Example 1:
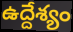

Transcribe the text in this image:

ఉద్దేశ్యం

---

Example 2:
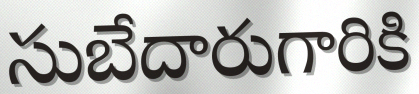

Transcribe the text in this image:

సుబేదారుగారికి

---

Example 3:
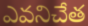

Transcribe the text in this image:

ఎవనిచేత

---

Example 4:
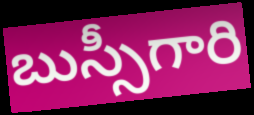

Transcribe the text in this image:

బుస్సీగారి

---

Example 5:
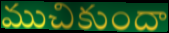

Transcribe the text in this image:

ముచికుందా